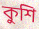
কুশি